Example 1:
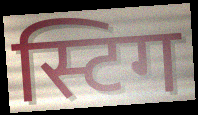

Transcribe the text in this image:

स्टिग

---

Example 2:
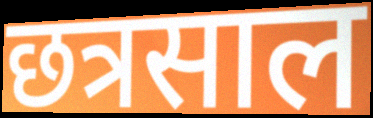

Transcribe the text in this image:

छत्रसाल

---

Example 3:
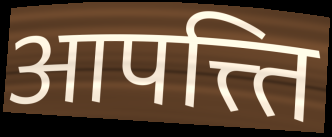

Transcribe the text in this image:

आपत्त्ति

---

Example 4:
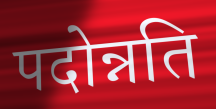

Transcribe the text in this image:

पदोन्नति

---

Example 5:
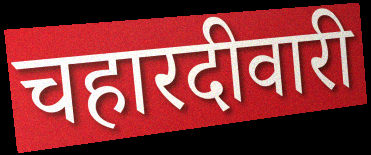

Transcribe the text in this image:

चहारदीवारी